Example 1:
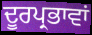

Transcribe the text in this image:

ਦੂਰਪ੍ਰਭਾਵਾਂ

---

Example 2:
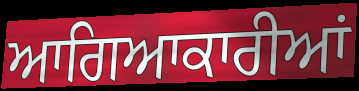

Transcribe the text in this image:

ਆਗਿਆਕਾਰੀਆਂ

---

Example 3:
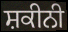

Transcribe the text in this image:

ਸ਼ਕੀਨੀ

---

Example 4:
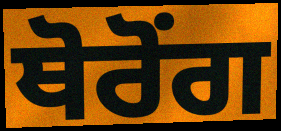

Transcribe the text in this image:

ਥੋਰੋਂਗ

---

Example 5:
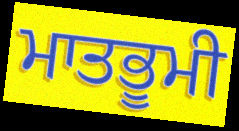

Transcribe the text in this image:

ਮਾਤਭੂਮੀ